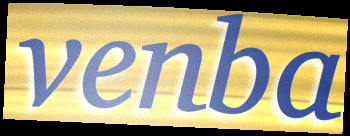
venba